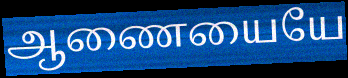
ஆணையையே